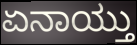
ಏನಾಯ್ತು